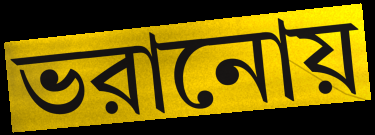
ভরানোয়